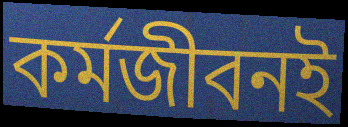
কর্মজীবনই